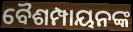
ବୈଶମ୍ପାୟନଙ୍କ